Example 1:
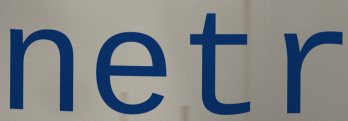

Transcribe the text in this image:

netr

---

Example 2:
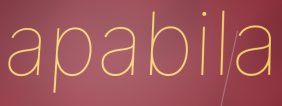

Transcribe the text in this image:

apabila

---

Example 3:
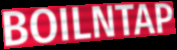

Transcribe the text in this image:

BOILNTAP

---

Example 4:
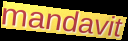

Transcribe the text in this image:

mandavit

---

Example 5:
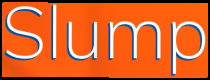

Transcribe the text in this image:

Slump